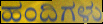
ಹಂದಿಗಳು